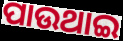
ପାଉଥାଇ